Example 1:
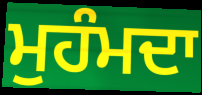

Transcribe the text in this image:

ਮੁਹੰਮਦਾ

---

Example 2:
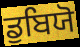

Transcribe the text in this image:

ਡੁਬਿਯੋ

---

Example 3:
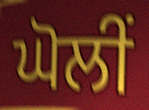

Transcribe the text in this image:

ਘੋਲੀਂ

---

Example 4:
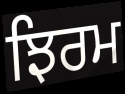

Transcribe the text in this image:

ਝਿਰਮ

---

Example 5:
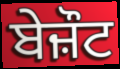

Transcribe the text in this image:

ਬੇਜ਼ੌਟ